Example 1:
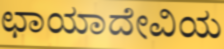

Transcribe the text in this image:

ಛಾಯಾದೇವಿಯ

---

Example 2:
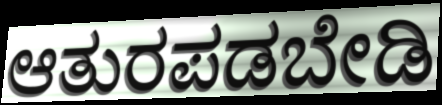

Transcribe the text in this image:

ಆತುರಪಡಬೇಡಿ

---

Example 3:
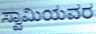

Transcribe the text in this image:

ಸ್ವಾಮಿಯವರ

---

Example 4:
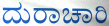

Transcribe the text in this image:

ದುರಾಚಾರಿ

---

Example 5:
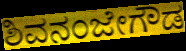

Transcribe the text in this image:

ಶಿವನಂಜೇಗೌಡ